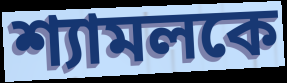
শ্যামলকে